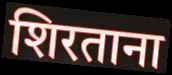
शिरताना